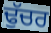
ਢੁੱਚਰ